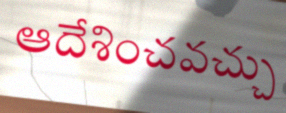
ఆదేశించవచ్చు